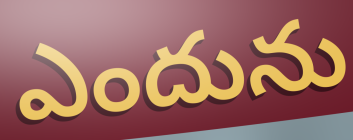
ఎందును